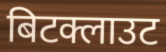
बिटक्लाउट